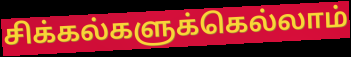
சிக்கல்களுக்கெல்லாம்